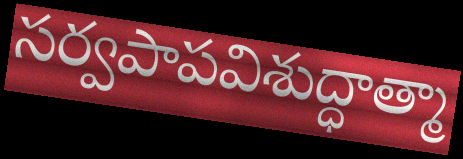
సర్వపాపవిశుద్ధాత్మా